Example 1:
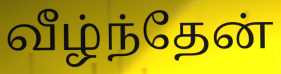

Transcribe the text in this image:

வீழ்ந்தேன்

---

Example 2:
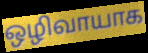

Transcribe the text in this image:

ஒழிவாயாக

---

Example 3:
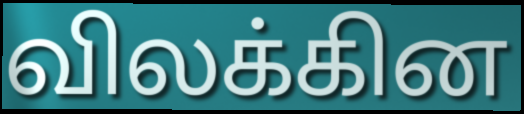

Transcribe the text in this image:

விலக்கின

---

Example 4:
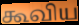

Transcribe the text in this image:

கூவிய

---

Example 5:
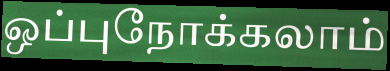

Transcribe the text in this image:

ஒப்புநோக்கலாம்